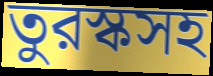
তুরস্কসহ